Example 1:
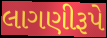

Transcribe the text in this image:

લાગણીરૂપે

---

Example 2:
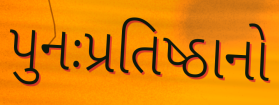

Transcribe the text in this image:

પુનઃપ્રતિષ્ઠાનો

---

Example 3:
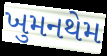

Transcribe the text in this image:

ખુમનથેમ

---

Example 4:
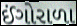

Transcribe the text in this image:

ઈંગોરાળા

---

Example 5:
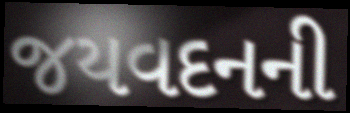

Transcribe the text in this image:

જયવદનની